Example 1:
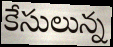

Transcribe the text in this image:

కేసులున్న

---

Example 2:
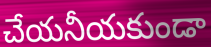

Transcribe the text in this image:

చేయనీయకుండా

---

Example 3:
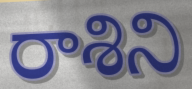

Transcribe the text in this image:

రాశిని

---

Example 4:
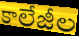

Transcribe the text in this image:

కాలేజీల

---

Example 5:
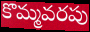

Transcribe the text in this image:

కొమ్మవరపు